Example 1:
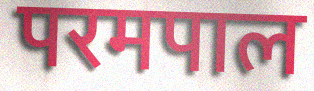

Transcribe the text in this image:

परमपाल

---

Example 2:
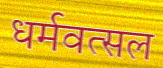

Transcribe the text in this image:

धर्मवत्सल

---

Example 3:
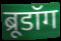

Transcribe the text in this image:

ब्रूडॉग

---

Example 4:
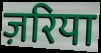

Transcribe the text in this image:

ज़रिया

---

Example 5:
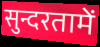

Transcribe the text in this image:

सुन्दरतामें